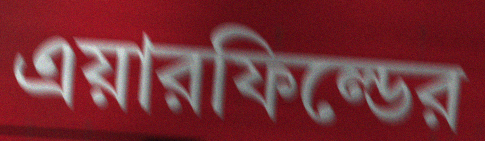
এয়ারফিল্ডের